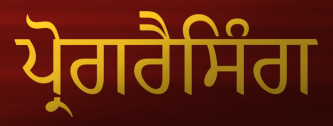
ਪ੍ਰੋਗਰੈਸਿੰਗ